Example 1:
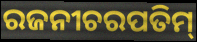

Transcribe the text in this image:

ରଜନୀଚରପତିମ୍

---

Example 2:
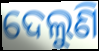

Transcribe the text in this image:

ଦେଲୁଣି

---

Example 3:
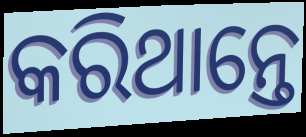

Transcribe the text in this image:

କରିଥାନ୍ତେ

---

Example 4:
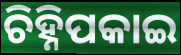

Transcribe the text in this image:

ଚିହ୍ନିପକାଇ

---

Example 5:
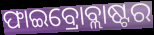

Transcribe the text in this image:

ଫାଇବ୍ରୋବ୍ଲାଷ୍ଟର